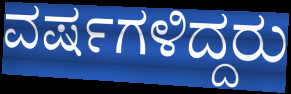
ವರ್ಷಗಳಿದ್ದರು